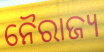
ନୈରାଜ୍ୟ